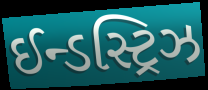
ઈન્ડસ્ટ્રિઝ